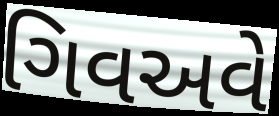
ગિવઅવે